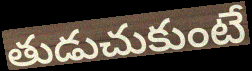
తుడుచుకుంటే